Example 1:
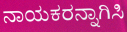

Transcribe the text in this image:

ನಾಯಕರನ್ನಾಗಿಸಿ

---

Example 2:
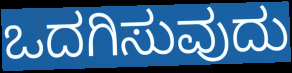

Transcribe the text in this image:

ಒದಗಿಸುವುದು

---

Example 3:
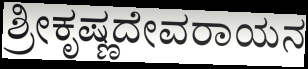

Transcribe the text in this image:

ಶ್ರೀಕೃಷ್ಣದೇವರಾಯನ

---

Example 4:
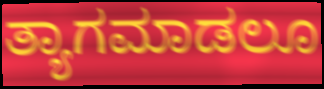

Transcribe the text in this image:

ತ್ಯಾಗಮಾಡಲೂ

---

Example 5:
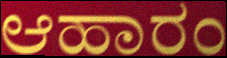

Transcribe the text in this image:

ಆಹಾರಂ